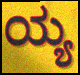
ಯ್ಯ